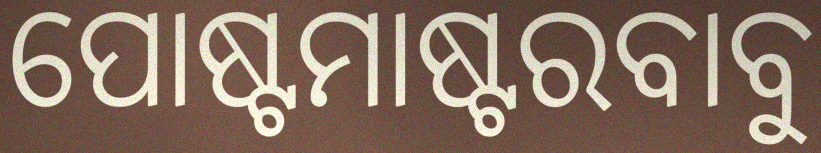
ପୋଷ୍ଟମାଷ୍ଟରବାବୁ